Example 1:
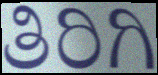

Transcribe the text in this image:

ತಿರಿಗಿ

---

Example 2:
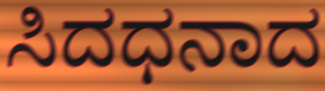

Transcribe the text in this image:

ಸಿದಧನಾದ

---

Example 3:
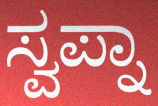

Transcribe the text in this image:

ಸ್ವಪ್ನಾ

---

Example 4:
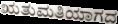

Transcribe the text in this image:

ಋತುಮತಿಯಾಗದ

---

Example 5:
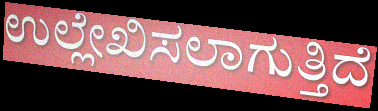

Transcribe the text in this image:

ಉಲ್ಲೇಖಿಸಲಾಗುತ್ತಿದೆ